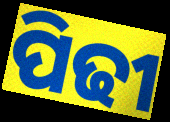
ପିଢୀ